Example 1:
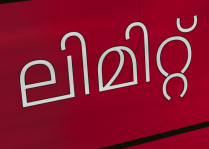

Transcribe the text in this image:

ലിമിറ്റ്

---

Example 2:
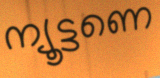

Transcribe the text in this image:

ന്യൂട്ടണെ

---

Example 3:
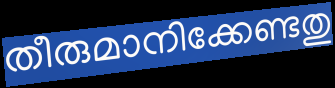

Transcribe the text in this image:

തീരുമാനിക്കേണ്ടതു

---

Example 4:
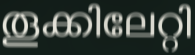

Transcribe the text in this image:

തൂക്കിലേറ്റി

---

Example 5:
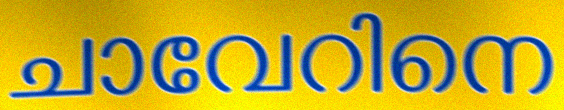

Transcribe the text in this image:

ചാവേറിനെ